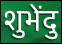
शुभेंदु